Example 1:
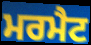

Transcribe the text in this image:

ਮਰਮੈਟ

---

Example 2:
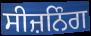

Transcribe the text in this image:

ਸੀਜ਼ਨਿੰਗ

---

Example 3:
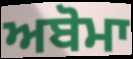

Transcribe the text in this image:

ਅਬੋਮਾ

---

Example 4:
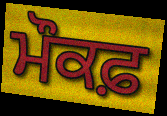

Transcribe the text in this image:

ਮੌਕਫ਼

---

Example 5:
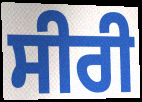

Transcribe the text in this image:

ਸੀਰੀ